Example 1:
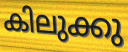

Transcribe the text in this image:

കിലുക്കു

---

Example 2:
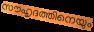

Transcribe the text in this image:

സൗഹൃദത്തിനെയും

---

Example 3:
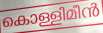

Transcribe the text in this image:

കൊള്ളിമീൻ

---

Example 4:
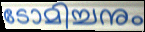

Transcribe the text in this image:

ടോമിച്ചനും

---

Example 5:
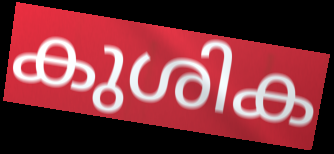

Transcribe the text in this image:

കുശിക